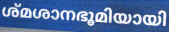
ശ്മശാനഭൂമിയായി